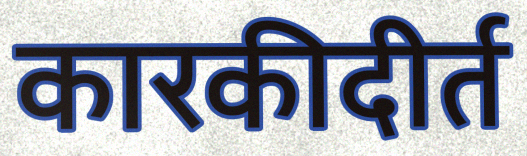
कारकीदीर्त